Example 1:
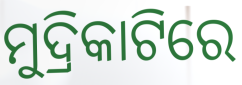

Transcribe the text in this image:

ମୁଦ୍ରିକାଟିରେ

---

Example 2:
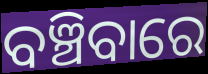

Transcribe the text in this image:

ବଞ୍ଚିବାରେ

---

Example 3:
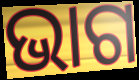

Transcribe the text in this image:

ଭାଗ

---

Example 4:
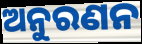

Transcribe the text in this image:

ଅନୁରଣନ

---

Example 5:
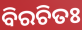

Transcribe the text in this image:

ବିରଚିତଃ